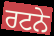
ਰਟਨੇ